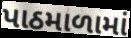
પાઠમાળામાં